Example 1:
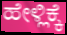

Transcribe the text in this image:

ಹೇಳ್ಲಿಕ್ಕೆ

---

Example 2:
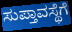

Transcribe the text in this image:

ಸುಪ್ತಾವಸ್ಥೆಗೆ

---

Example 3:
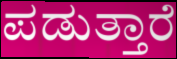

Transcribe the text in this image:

ಪಡುತ್ತಾರೆ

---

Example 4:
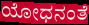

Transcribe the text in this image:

ಯೋಧನಂತೆ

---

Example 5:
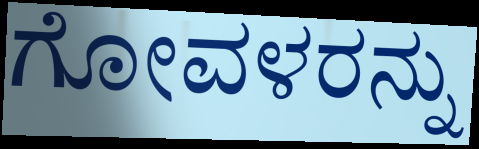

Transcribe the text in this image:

ಗೋವಳರನ್ನು